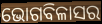
ଭୋଗବିଳାସର